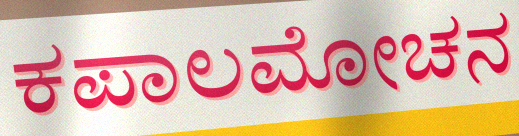
ಕಪಾಲಮೋಚನ